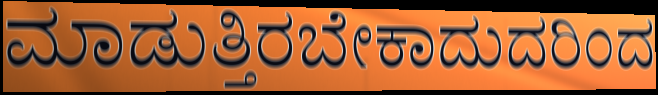
ಮಾಡುತ್ತಿರಬೇಕಾದುದರಿಂದ